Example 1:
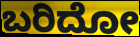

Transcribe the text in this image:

ಬರಿದೋ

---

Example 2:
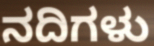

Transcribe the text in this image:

ನದಿಗಳು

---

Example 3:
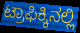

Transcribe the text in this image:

ಟ್ರಾಫಿಕ್ಕಿನಲ್ಲಿ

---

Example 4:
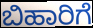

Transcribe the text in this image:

ಬಿಹಾರಿಗೆ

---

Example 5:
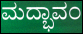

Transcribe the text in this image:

ಮದ್ಭಾವಂ